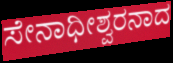
ಸೇನಾಧೀಶ್ವರನಾದ